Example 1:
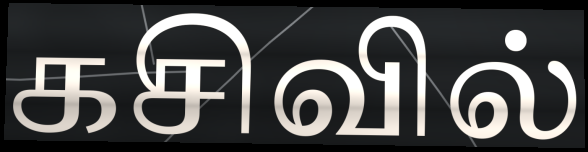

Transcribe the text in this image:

கசிவில்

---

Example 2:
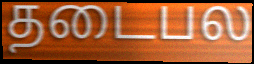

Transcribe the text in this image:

தடைபல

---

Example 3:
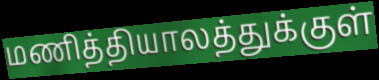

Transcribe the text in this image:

மணித்தியாலத்துக்குள்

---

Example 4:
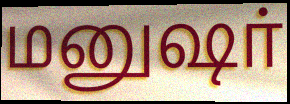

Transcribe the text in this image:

மனுஷர்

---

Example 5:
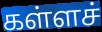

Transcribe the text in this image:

கள்ளச்